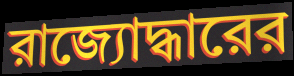
রাজ্যোদ্ধারের